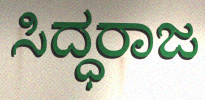
ಸಿದ್ಧರಾಜ